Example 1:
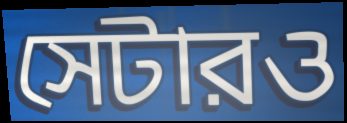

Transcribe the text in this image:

সেটারও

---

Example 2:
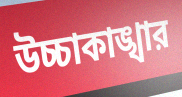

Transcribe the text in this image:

উচ্চাকাঙ্খার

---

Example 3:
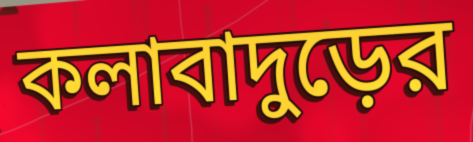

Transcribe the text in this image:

কলাবাদুড়ের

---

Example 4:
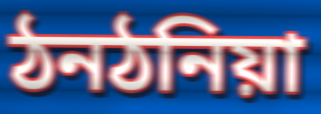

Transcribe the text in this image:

ঠনঠনিয়া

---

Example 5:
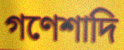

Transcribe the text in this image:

গণেশাদি